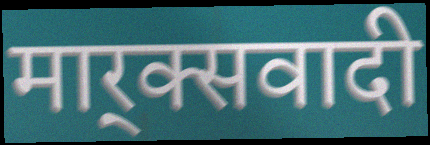
मार्क्सवादी